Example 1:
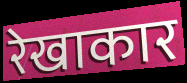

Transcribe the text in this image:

रेखाकार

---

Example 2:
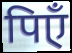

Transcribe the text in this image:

पिएँ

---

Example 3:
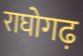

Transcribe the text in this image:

राघोगढ़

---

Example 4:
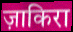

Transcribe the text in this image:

ज़ाकिरा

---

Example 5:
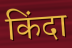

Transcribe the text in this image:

किंदा